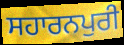
ਸਹਾਰਨਪੁਰੀ